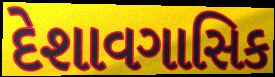
દેશાવગાસિક